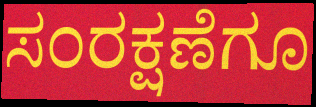
ಸಂರಕ್ಷಣೆಗೂ